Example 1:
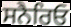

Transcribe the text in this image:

ਸਨੈਰਿਓ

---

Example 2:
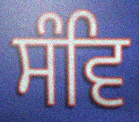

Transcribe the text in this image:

ਸੰਵਿ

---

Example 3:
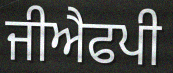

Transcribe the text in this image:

ਜੀਐਫਪੀ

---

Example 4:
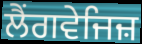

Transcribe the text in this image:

ਲੈਂਗਵੇਜਿਜ਼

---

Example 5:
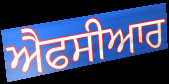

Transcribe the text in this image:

ਐਫਸੀਆਰ